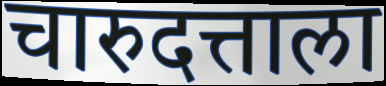
चारुदत्ताला